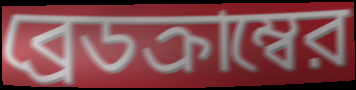
ব্রেডক্রাম্বের